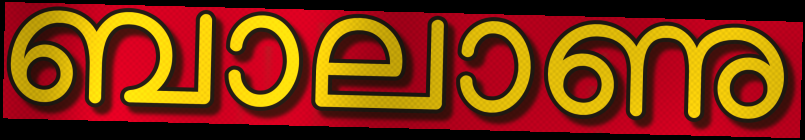
ബാലാണു